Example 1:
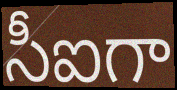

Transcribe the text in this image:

సీఐగా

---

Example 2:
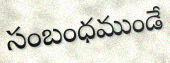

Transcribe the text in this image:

సంబంధముండే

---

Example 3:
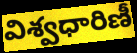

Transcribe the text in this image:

విశ్వధారిణీ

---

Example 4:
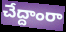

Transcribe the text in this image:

చేద్దాంరా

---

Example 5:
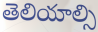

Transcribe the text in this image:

తెలియాల్సి